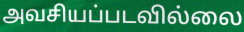
அவசியப்படவில்லை